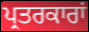
ਪ੍ਰਤਰਕਾਰਾਂ